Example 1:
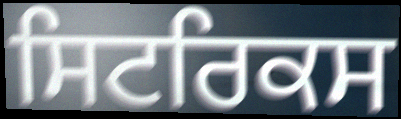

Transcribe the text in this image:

ਸਿਟਰਿਕਸ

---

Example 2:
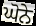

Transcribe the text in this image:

ਘੋਨੇ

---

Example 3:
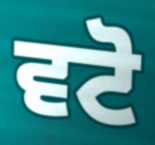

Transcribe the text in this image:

ਵਟੋ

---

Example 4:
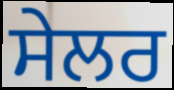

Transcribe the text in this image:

ਸੇਲਰ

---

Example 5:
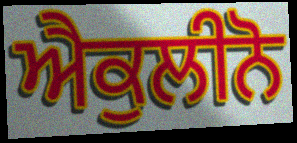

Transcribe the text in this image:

ਐਕੁਲੀਨੋ